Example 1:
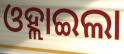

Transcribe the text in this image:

ଓହ୍ଲାଇଲା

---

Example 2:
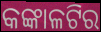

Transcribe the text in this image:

କଙ୍କାଳଟିର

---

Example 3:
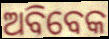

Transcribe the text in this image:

ଅବିବେକ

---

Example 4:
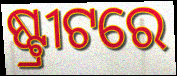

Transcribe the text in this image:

ଷ୍ଟ୍ରୀଟରେ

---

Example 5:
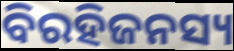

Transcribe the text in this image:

ବିରହିଜନସ୍ୟ